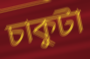
চাকুটা